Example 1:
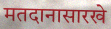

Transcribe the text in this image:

मतदानासारखे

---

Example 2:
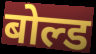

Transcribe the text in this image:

बोल्ड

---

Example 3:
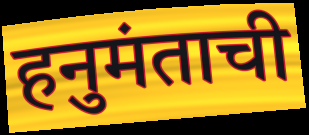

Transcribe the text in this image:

हनुमंताची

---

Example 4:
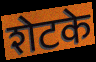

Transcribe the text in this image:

शेटके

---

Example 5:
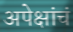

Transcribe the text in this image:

अपेक्षांचं